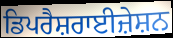
ਡਿਪਰੈਸ਼ਰਾਈਜ਼ੇਸ਼ਨ